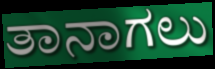
ತಾನಾಗಲು